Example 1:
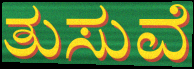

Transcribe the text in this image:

ತುಸುವೆ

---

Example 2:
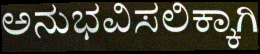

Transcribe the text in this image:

ಅನುಭವಿಸಲಿಕ್ಕಾಗಿ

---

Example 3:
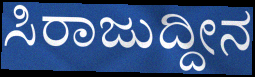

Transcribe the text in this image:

ಸಿರಾಜುದ್ದೀನ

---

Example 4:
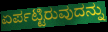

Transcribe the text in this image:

ಏರ್ಪಟ್ಟಿರುವುದನ್ನು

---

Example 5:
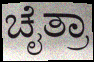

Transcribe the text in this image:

ಚೈತ್ರಾ